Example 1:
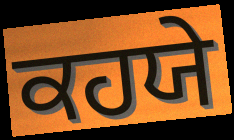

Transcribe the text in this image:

ਕਹਯੇ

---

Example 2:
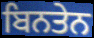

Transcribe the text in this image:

ਬਿਨਤੇਨ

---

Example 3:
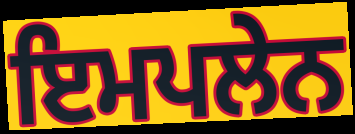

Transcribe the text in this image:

ਇਮਪਲੇਨ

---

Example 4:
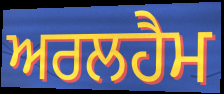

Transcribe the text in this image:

ਅਰਲਹੈਮ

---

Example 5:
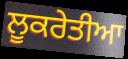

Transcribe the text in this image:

ਲੂਕਰੇਤੀਆ